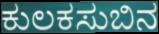
ಕುಲಕಸುಬಿನ